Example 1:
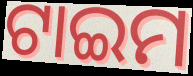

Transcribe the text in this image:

ଟାଇମ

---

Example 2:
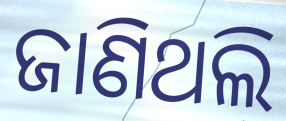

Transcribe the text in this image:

ଜାଣିଥଲି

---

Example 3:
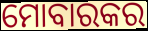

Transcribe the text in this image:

ମୋବାରକର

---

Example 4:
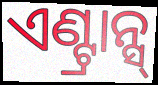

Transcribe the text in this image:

ଏଣ୍ଟ୍ରାନ୍ସ୍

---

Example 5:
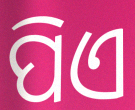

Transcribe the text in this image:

ପିଏ